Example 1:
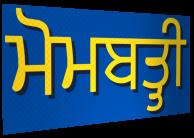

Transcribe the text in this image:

ਮੋਮਬਤ੍ਤੀ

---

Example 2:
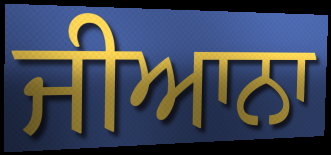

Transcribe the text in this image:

ਜੀਆਨਾ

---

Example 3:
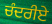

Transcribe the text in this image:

ਚੰਦਰੀਏ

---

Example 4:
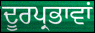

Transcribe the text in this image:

ਦੂਰਪ੍ਰਭਾਵਾਂ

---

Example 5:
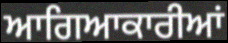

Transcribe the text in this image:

ਆਗਿਆਕਾਰੀਆਂ